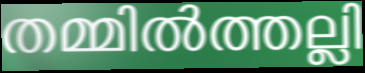
തമ്മിൽത്തല്ലി